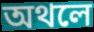
অথলে